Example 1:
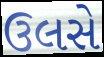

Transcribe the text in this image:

ઉલસે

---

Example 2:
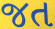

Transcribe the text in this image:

જત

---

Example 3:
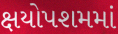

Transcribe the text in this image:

ક્ષયોપશમમાં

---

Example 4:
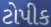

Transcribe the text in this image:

ટોપીક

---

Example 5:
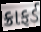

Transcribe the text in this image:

ક્રાફર્ડ